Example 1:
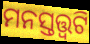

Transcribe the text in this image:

ମନସ୍ତତ୍ତ୍ୱଟି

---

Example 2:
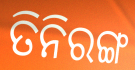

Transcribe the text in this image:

ତିନିରଙ୍ଗ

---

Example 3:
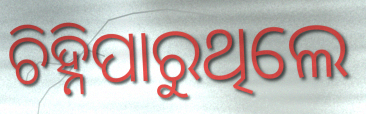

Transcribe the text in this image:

ଚିହ୍ନିପାରୁଥିଲେ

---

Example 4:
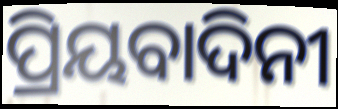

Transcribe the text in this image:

ପ୍ରିୟବାଦିନୀ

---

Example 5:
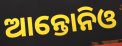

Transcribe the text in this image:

ଆନ୍ତୋନିଓ